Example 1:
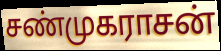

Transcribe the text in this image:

சண்முகராசன்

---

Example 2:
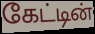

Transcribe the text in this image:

கேட்டின்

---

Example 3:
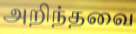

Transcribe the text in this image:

அறிந்தவை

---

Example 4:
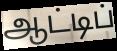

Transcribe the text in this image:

ஆட்டிப்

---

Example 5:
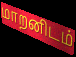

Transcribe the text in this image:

மாறனிடம்